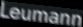
Leumann